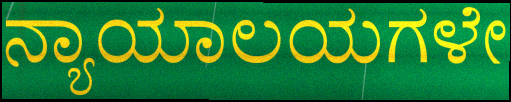
ನ್ಯಾಯಾಲಯಗಳೇ